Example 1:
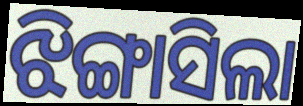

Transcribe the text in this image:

ଝିଙ୍ଗାସିଲା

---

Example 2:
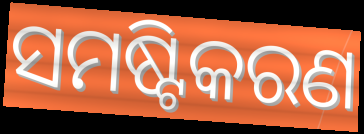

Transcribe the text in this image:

ସମଷ୍ଟିକରଣ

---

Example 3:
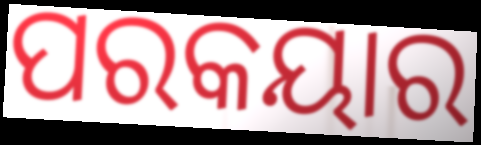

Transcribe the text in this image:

ପରକୟାର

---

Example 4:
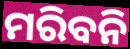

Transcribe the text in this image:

ମରିବନି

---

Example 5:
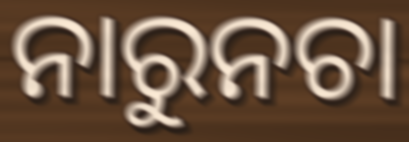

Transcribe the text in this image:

ନାରୁନଚା